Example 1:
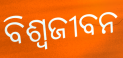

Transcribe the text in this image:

ବିଶ୍ଵଜୀବନ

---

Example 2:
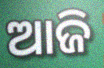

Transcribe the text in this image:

ଆଜି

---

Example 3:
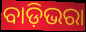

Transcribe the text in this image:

ବାଡ଼ିଭରା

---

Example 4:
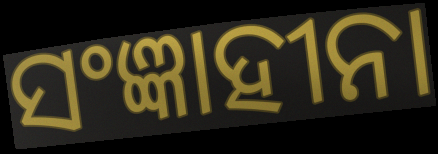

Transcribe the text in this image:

ସଂଜ୍ଞାହୀନା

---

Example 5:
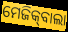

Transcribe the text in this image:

ମେଜିକ୍‍ବାଲା